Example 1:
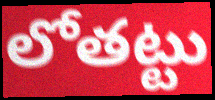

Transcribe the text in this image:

లోతట్టు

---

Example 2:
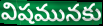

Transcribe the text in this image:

విషమునకు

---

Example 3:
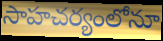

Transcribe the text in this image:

సాహచర్యంలోనూ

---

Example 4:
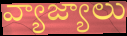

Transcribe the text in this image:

వ్యాజ్యాలు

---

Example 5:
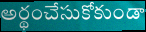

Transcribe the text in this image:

అర్థంచేసుకోకుండా